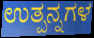
ಉತ್ಪನ್ನಗಳ